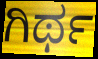
ಗಿರ್ಥ